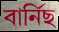
বাৰ্নিছ